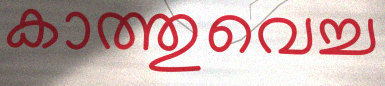
കാത്തുവെച്ച